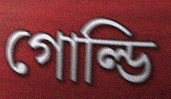
গোল্ডি